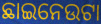
ଛାଇନେଉଟା